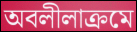
অবলীলাক্রমে